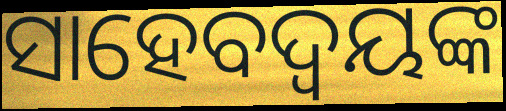
ସାହେବଦ୍ୱୟଙ୍କ